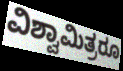
ವಿಶ್ವಾಮಿತ್ರರೂ